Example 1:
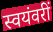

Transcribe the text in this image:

स्वयंवरीं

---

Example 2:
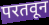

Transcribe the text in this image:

परतवून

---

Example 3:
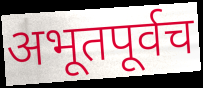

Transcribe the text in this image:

अभूतपूर्वच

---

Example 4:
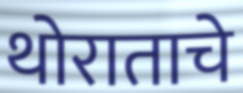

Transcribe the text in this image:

थोराताचे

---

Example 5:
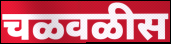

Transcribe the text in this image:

चळवळीस